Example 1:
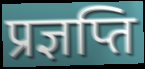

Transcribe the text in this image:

प्रज्ञप्ति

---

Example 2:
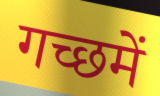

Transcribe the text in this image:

गच्छमें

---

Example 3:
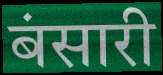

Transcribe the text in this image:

बंसारी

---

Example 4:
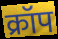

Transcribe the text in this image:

क्रॉप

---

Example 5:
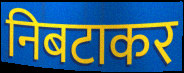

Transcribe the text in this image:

निबटाकर